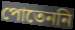
পোতেননি